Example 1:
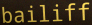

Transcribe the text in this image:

bailiff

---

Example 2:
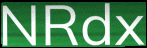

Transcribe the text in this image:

NRdx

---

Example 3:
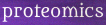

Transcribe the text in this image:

proteomics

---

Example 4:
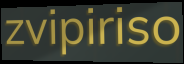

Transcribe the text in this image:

zvipiriso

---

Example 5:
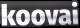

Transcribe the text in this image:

koovai